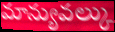
మాన్యువల్కు